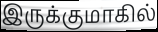
இருக்குமாகில்